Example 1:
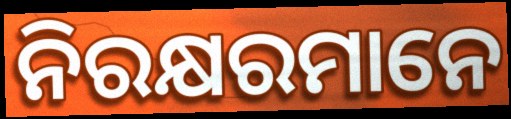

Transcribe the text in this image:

ନିରକ୍ଷରମାନେ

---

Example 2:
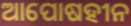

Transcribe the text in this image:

ଆପୋଷହୀନ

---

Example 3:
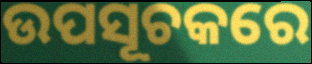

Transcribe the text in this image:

ଉପସୂଚକରେ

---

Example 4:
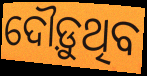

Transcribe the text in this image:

ଦୌଡ଼ୁଥିବ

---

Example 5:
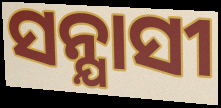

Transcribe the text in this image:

ସନ୍ଯାସୀ